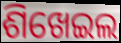
ଶିଖେଇଲ